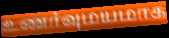
உணர்வுமயமாக